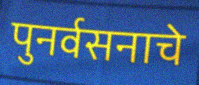
पुनर्वसनाचे